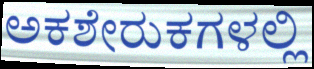
ಅಕಶೇರುಕಗಳಲ್ಲಿ